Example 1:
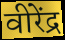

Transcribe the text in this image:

वीरेंद्र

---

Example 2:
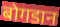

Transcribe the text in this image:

बोगडान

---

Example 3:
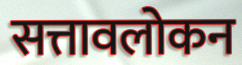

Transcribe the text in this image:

सत्तावलोकन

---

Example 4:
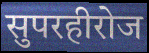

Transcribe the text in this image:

सुपरहीरोज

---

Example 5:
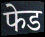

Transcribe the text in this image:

फेड